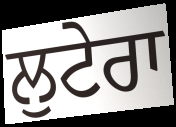
ਲੁਟੇਰਾ